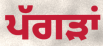
ਪੱਗੜਾਂ